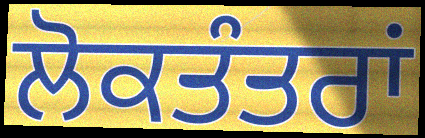
ਲੋਕਤੰਤਰਾਂ